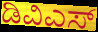
ಡಿವಿಎಸ್